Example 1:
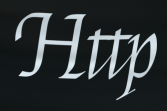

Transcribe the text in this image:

Http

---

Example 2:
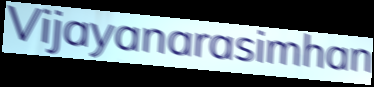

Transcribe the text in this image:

Vijayanarasimhan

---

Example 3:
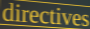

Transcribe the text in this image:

directives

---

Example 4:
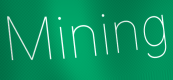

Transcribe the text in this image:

Mining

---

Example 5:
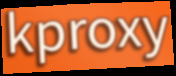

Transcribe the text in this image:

kproxy